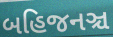
બહિજનઞ્ચ